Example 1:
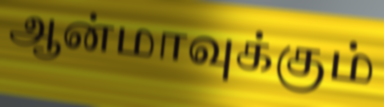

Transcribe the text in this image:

ஆன்மாவுக்கும்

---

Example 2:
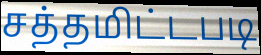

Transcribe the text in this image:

சத்தமிட்டபடி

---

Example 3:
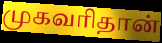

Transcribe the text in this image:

முகவரிதான்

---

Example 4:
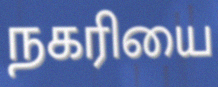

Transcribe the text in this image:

நகரியை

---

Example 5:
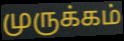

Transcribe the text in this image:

முருக்கம்